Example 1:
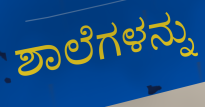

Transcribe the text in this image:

ಶಾಲೆಗಳನ್ನು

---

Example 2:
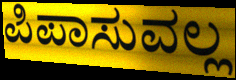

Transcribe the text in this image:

ಪಿಪಾಸುವಲ್ಲ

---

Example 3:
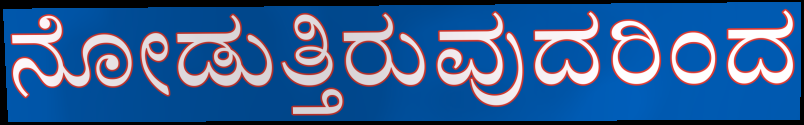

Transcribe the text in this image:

ನೋಡುತ್ತಿರುವುದರಿಂದ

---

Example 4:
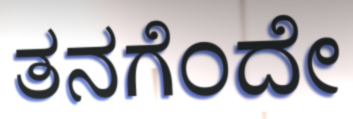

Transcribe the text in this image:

ತನಗೆಂದೇ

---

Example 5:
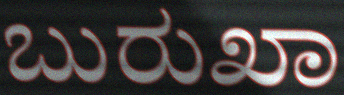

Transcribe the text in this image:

ಬುರುಖಾ